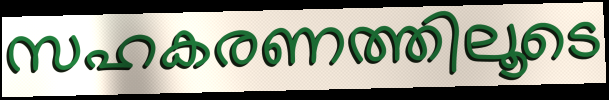
സഹകരണത്തിലൂടെ